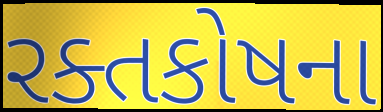
રક્તકોષના